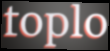
toplo